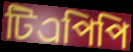
টিএপিপি